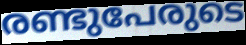
രണ്ടുപേരുടെ